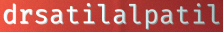
drsatilalpatil